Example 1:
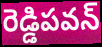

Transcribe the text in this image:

రెడ్డిపవన్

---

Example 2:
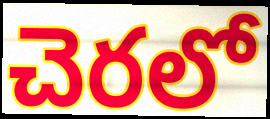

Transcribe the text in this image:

చెరలో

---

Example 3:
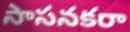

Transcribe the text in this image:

సాసనకరా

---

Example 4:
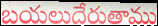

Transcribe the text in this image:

బయలుదేరుతాము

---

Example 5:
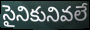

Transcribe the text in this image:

సైనికునివలే